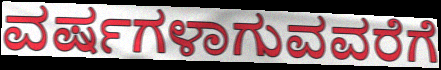
ವರ್ಷಗಳಾಗುವವರೆಗೆ